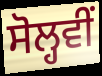
ਸੋਲ੍ਹਵੀਂ